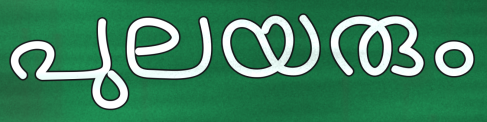
പുലയരും